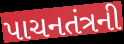
પાચનતંત્રની